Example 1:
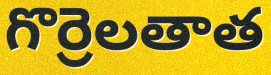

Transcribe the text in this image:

గొర్రెలతాత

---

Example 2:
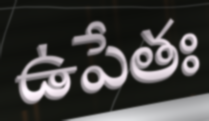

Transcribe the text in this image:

ఉపేతః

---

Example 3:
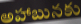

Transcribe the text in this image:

అహాబునకు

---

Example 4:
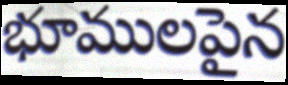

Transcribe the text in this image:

భూములపైన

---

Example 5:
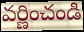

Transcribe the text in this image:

వర్ణించండి